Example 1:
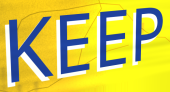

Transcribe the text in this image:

KEEP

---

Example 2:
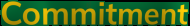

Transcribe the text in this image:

Commitment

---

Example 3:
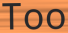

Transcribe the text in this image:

Too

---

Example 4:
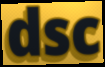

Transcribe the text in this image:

dsc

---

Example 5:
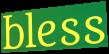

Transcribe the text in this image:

bless